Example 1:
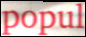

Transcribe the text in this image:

popul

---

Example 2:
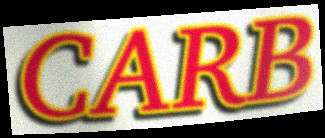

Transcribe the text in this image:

CARB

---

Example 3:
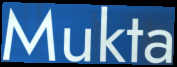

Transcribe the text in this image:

Mukta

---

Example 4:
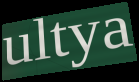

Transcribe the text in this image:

ultya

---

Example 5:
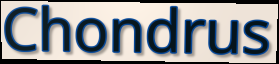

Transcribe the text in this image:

Chondrus